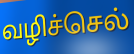
வழிச்செல்